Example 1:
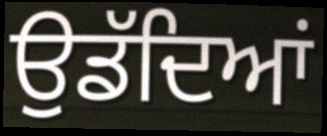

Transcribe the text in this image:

ਉਡੱਦਿਆਂ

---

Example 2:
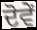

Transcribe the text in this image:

ਦੋਵੇਂ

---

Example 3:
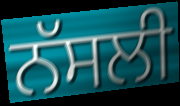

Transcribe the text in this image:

ਨੱਸਲੀ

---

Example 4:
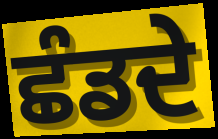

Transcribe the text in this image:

ਛੰਡਦੇ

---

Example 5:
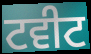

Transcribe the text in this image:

ਟਵੀਟ